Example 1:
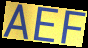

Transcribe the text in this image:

AEF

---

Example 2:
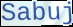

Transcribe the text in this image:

Sabuj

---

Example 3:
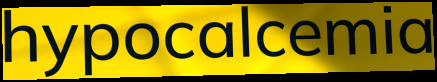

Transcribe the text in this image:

hypocalcemia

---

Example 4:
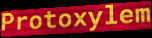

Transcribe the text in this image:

Protoxylem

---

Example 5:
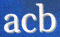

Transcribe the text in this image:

acb